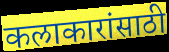
कलाकारांसाठी